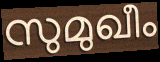
സുമുഖീം